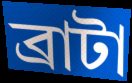
ব্রাটা